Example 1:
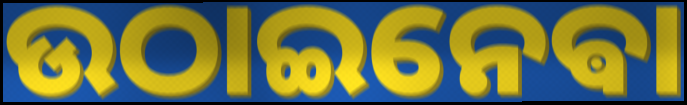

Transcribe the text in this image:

ଉଠାଇନେଵା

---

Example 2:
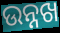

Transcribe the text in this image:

ଉନ୍ନଖ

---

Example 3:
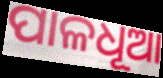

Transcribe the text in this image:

ପାଳଧୂଆ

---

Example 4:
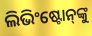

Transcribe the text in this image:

ଲିଭିଂଷ୍ଟୋନ୍‌ଙ୍କୁ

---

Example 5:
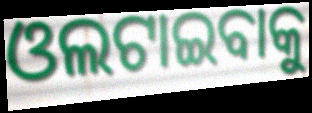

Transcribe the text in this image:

ଓଲଟାଇବାକୁ